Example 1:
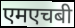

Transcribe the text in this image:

एमएचबी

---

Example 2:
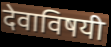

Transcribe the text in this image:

देवाविषयी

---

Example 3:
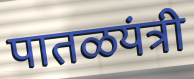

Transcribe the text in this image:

पातळयंत्री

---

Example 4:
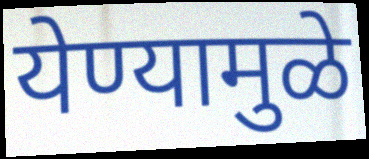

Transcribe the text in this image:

येण्यामुळे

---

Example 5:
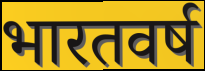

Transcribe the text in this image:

भारतवर्ष